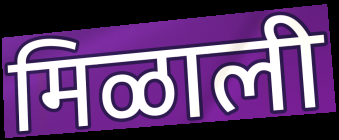
मिळाली